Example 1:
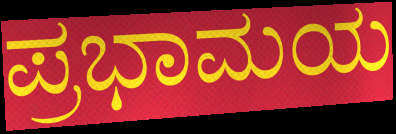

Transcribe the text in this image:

ಪ್ರಭಾಮಯ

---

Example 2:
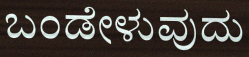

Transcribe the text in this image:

ಬಂಡೇಳುವುದು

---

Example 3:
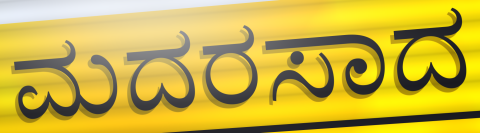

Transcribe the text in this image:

ಮದರಸಾದ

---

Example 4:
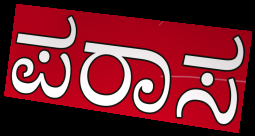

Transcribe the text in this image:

ಪರಾಸ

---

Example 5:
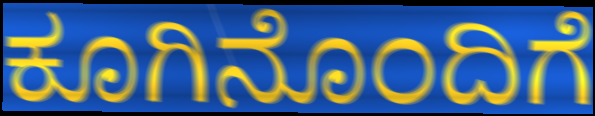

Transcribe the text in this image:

ಕೂಗಿನೊಂದಿಗೆ